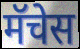
मॅचेस